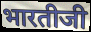
भारतीजी